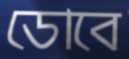
ডোবে